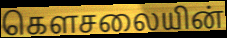
கௌசலையின்